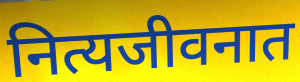
नित्यजीवनात